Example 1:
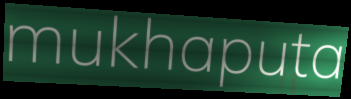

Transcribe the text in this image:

mukhaputa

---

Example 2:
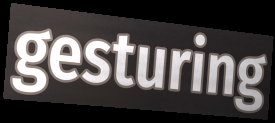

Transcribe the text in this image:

gesturing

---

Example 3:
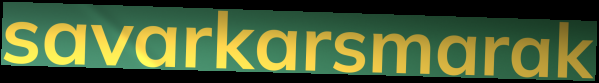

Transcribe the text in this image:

savarkarsmarak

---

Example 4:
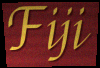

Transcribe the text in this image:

Fiji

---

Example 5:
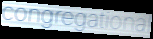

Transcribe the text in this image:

congregational